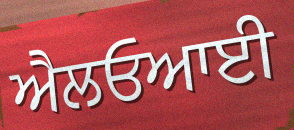
ਐਲਓਆਈ